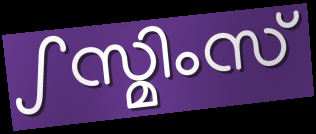
ഽസ്മിംസ്